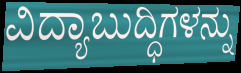
ವಿದ್ಯಾಬುದ್ಧಿಗಳನ್ನು